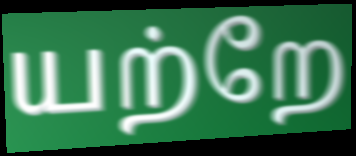
யற்றே